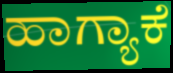
ಹಾಗ್ಯಾಕೆ